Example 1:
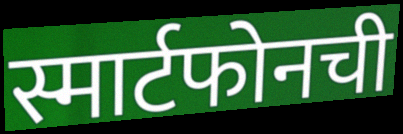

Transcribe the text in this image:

स्मार्टफोनची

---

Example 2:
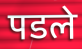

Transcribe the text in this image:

पडले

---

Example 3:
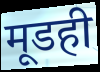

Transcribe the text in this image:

मूडही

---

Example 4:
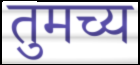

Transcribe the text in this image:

तुमच्य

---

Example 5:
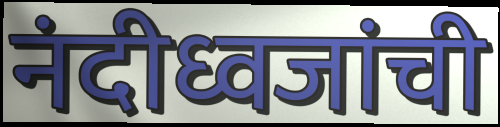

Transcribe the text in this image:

नंदीध्वजांची